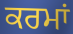
ਕਰਮਾਂ